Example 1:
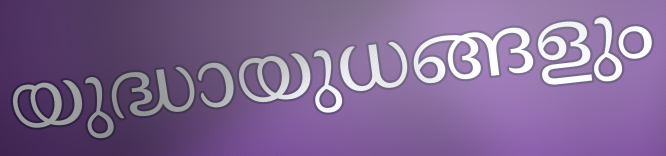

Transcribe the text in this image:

യുദ്ധായുധങ്ങളും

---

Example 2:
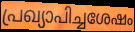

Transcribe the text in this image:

പ്രഖ്യാപിച്ചശേഷം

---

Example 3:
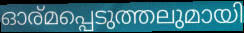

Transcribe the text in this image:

ഓര്മപ്പെടുത്തലുമായി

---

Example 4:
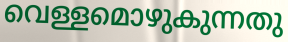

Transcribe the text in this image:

വെള്ളമൊഴുകുന്നതു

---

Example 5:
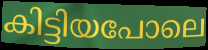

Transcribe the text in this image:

കിട്ടിയപോലെ